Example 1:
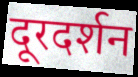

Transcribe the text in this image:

दूरदर्शन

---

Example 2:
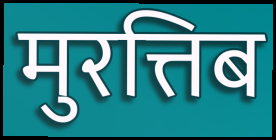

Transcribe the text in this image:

मुरत्तिब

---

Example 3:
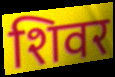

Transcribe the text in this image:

शिवर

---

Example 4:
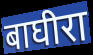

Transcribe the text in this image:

बाघीरा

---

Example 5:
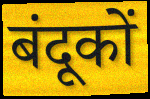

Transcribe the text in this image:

बंदूकों